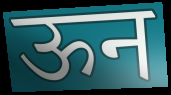
ऊन